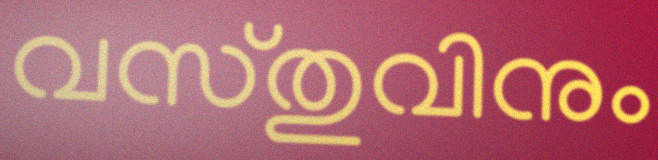
വസ്തുവിനും